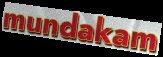
mundakam